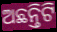
ଅଛନ୍ତିଟି